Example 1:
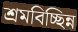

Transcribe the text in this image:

শ্রমবিচ্ছিন্ন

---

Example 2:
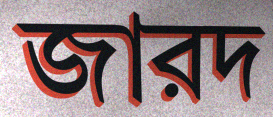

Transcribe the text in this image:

জারদ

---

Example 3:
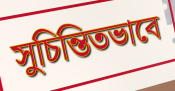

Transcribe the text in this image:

সুচিন্তিতভাবে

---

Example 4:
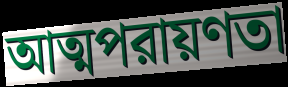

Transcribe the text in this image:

আত্মপরায়ণতা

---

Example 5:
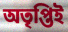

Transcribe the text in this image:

অতৃপ্তিই